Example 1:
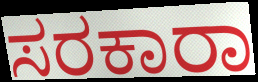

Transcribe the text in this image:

ಸರಕಾರಾ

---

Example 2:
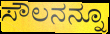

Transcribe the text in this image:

ಸೌಲನನ್ನೂ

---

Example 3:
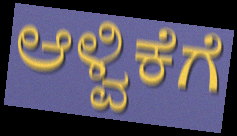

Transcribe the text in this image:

ಆಳ್ವಿಕೆಗೆ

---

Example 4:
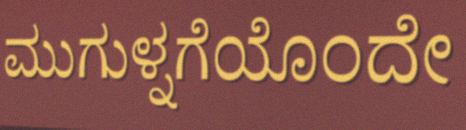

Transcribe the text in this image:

ಮುಗುಳ್ನಗೆಯೊಂದೇ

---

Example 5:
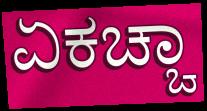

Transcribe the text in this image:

ಏಕಚ್ಚಾ